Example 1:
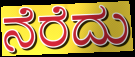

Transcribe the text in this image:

ನೆರೆದು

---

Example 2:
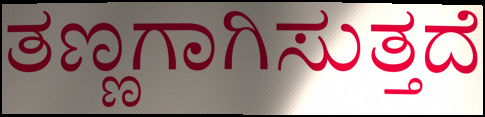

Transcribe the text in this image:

ತಣ್ಣಗಾಗಿಸುತ್ತದೆ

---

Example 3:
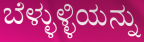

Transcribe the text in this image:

ಬೆಳ್ಳುಳ್ಳಿಯನ್ನು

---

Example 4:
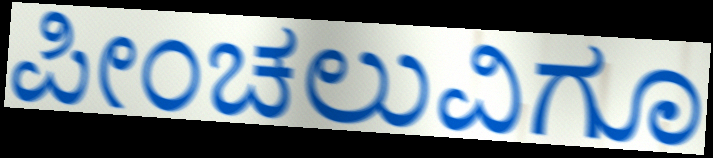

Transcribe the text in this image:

ಪೀಂಚಲುವಿಗೂ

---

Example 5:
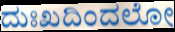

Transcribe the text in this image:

ದುಃಖದಿಂದಲೋ